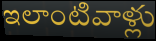
ఇలాంటివాళ్లు